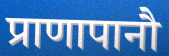
प्राणापानौ